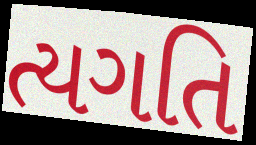
ત્યગતિ